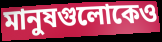
মানুষগুলোকেও